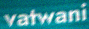
vatwani